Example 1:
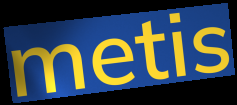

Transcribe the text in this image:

metis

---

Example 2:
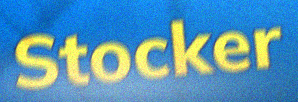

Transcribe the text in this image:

Stocker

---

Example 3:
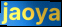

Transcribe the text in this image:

jaoya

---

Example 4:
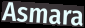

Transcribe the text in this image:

Asmara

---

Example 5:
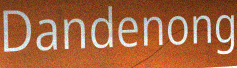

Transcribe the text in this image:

Dandenong